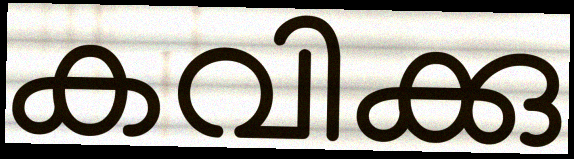
കവിക്കു